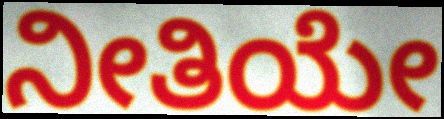
ನೀತಿಯೇ